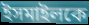
ইসমাইলকে